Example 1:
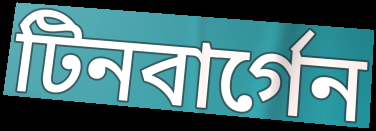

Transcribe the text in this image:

টিনবার্গেন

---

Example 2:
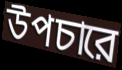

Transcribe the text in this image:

উপচারে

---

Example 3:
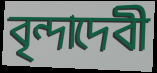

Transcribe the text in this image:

বৃন্দাদেবী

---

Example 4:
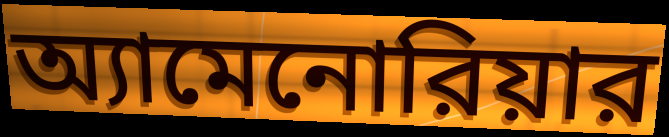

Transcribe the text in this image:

অ্যামেনোরিয়ার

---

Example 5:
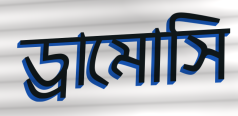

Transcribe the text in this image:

ড্রামোসি